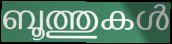
ബൂത്തുകൾ